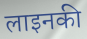
लाइनकी